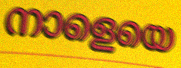
നാളെയെ